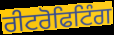
ਰੀਟਰੋਫਿਟਿੰਗ